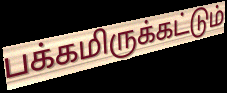
பக்கமிருக்கட்டும்